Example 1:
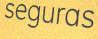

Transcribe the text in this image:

seguras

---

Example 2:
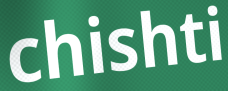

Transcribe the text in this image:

chishti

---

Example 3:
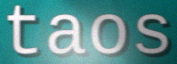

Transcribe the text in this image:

taos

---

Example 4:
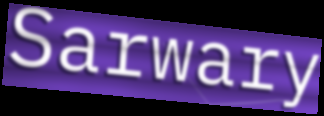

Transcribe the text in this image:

Sarwary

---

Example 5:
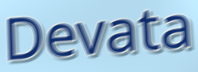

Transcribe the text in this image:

Devata